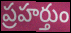
ప్రహర్తుం